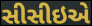
સીસીઇએ